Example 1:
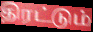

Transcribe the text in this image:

திரட்டும்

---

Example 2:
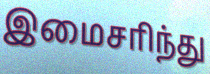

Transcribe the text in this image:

இமைசரிந்து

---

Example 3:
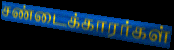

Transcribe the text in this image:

சண்டைக்காரர்கள்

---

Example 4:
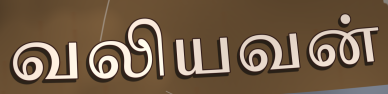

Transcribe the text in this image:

வலியவன்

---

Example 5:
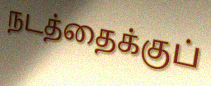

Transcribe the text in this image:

நடத்தைக்குப்